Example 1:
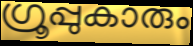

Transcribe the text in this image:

ഗ്രൂപ്പുകാരും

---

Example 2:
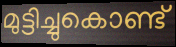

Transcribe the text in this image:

മുട്ടിച്ചുകൊണ്ട്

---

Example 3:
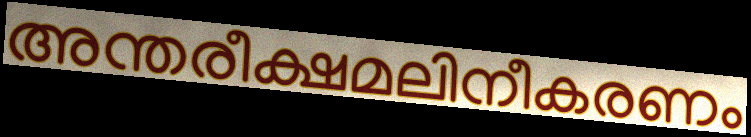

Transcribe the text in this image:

അന്തരീക്ഷമലിനീകരണം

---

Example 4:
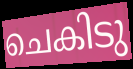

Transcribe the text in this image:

ചെകിടു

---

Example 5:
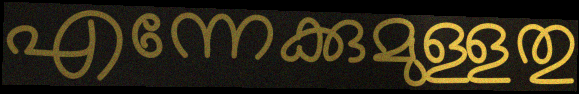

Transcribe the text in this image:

എന്നേക്കുമുള്ളതു